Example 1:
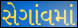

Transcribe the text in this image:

સેગાંવમાં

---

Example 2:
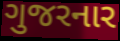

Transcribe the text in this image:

ગુજરનાર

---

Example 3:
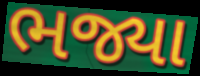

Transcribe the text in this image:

ભજ્યા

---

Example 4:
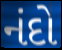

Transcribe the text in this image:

નંદો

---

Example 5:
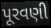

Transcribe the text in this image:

પૂરવણી